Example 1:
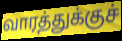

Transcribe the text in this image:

வாரத்துக்குச்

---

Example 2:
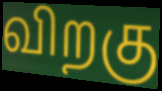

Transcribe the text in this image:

விறகு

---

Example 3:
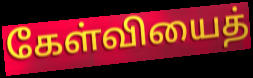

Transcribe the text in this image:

கேள்வியைத்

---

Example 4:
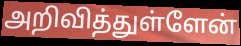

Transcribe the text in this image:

அறிவித்துள்ளேன்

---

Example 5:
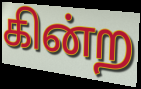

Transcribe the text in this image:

கின்ற